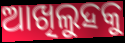
ଆଖିଲୁହକୁ